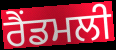
ਰੈਂਡਮਲੀ